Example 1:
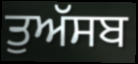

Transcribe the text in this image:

ਤੁਅੱਸਬ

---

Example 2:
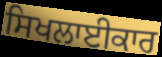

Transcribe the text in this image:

ਸਿਖਲਾਈਕਾਰ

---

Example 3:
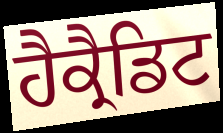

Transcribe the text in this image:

ਹੈਕ੍ਰੈਡਿਟ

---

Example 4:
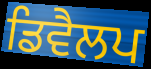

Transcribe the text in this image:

ਡਿਵੈਲਪ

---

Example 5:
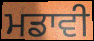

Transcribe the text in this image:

ਮਡਾਵੀ